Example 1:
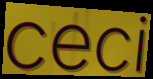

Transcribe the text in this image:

ceci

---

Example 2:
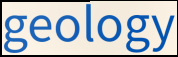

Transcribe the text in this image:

geology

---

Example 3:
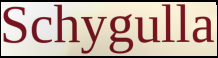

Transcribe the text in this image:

Schygulla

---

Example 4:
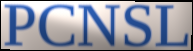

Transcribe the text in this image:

PCNSL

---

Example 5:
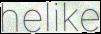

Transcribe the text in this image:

helike